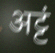
अट्टं